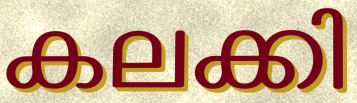
കലക്കി